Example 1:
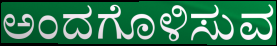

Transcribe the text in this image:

ಅಂದಗೊಳಿಸುವ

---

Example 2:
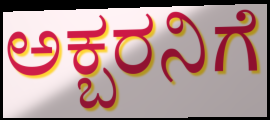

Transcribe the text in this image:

ಅಕ್ಬರನಿಗೆ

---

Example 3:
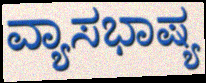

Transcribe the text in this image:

ವ್ಯಾಸಭಾಷ್ಯ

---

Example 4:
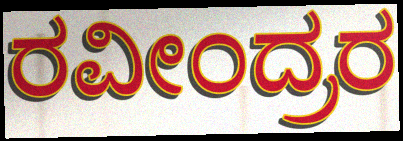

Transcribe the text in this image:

ರವೀಂದ್ರರ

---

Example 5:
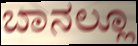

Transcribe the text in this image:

ಬಾನಲ್ಲೂ